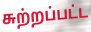
சுற்றப்பட்ட